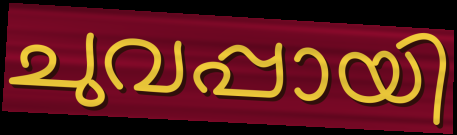
ചുവപ്പായി